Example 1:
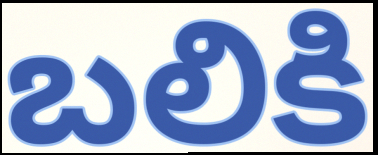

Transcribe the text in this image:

బలికి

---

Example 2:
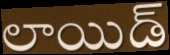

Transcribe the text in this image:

లాయిడ్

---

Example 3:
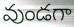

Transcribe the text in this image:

వుండగా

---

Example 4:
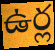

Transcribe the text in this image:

ఉర్ల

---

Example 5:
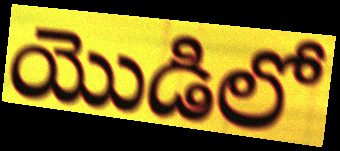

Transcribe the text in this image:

యొడిలో